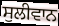
ਸੁਲੀਵਾਨ